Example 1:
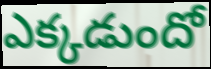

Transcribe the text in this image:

ఎక్కడుందో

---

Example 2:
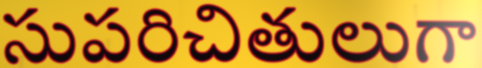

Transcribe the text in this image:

సుపరిచితులుగా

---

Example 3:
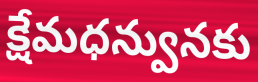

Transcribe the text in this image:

క్షేమధన్వునకు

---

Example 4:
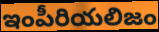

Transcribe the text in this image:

ఇంపీరియలిజం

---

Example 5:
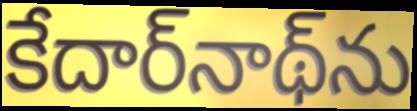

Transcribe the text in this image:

కేదార్‌నాథ్‌ను